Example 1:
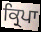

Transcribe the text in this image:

ਕ੍ਰਿਪਾ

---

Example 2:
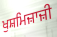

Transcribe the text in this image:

ਖੁਸ਼ਮਿਜ਼ਾਜ਼ੀ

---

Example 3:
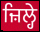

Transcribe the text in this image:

ਜ਼ਿਲ੍ਹੇ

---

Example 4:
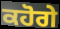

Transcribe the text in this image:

ਕਹੋਗੇ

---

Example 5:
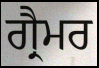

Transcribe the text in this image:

ਗ੍ਰੈਮਰ